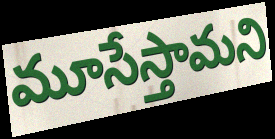
మూసేస్తామని